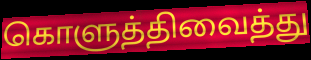
கொளுத்திவைத்து